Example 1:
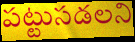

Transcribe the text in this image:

పట్టుసడలని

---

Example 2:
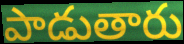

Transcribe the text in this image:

పాడుతారు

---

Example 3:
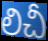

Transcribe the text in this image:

లిచీ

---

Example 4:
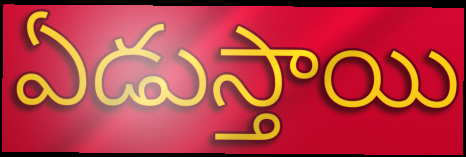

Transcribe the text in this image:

ఏడుస్తాయి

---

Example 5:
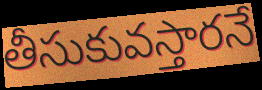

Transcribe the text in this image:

తీసుకువస్తారనే